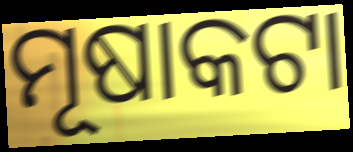
ମୂଷାକଟା